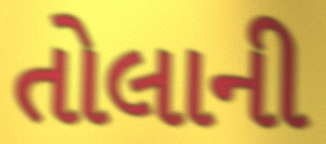
તોલાની